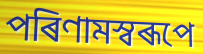
পৰিণামস্বৰূপে